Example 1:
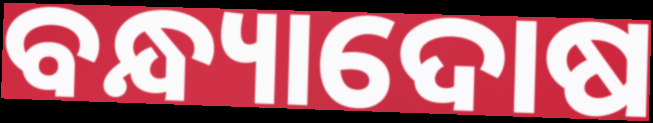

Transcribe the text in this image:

ବନ୍ଧ୍ୟାଦୋଷ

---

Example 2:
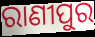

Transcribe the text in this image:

ରାଣୀପୁର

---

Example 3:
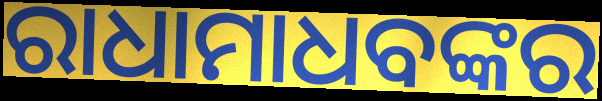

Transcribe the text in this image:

ରାଧାମାଧବଙ୍କର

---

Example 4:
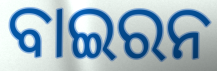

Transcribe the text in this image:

ବାଇରନ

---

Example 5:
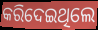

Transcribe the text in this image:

କରିଦେଇଥିଲେ